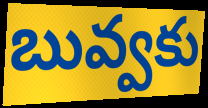
బువ్వకు